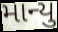
માન્યુ